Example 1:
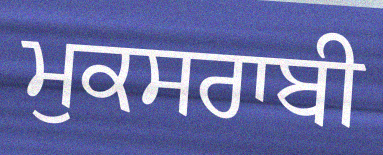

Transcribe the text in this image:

ਮੁਕਸਰਾਬੀ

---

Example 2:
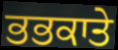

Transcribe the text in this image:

ਭਭਕਾਤੇ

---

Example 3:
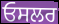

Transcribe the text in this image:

ਓਸਲਰ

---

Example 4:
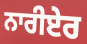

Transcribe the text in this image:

ਨਾਰੀਏਰ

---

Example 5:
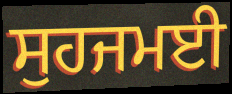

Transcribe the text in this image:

ਸੁਹਜਮਈ